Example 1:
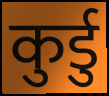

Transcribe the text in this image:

कुर्डु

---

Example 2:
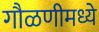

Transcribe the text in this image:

गौळणीमध्ये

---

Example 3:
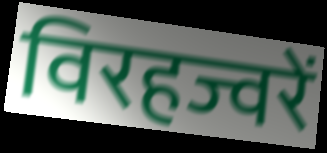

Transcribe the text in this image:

विरहज्वरें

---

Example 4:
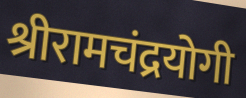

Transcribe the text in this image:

श्रीरामचंद्रयोगी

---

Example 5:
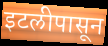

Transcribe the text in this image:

इटलीपासून